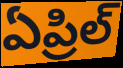
ఏప్రిల్